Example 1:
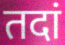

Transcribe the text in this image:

तदां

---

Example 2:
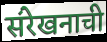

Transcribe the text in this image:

संरेखनाची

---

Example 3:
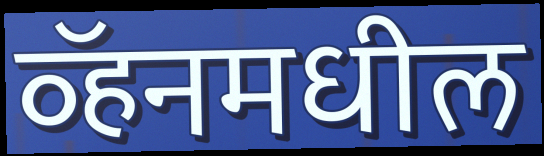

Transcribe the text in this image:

व्हॅनमधील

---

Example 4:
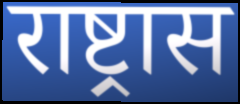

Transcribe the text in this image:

राष्ट्रास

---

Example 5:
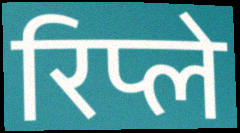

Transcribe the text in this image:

रिप्ले